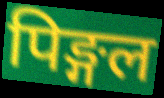
पिङ्गल